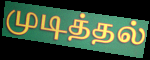
முடித்தல்